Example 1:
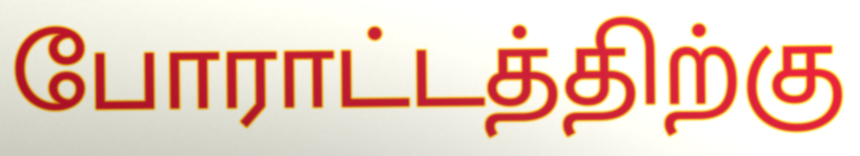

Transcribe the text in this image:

போராட்டத்திற்கு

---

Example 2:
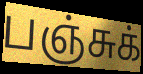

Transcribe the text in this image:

பஞ்சுக்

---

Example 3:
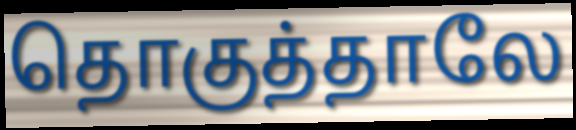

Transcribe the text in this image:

தொகுத்தாலே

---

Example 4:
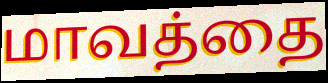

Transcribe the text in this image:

மாவத்தை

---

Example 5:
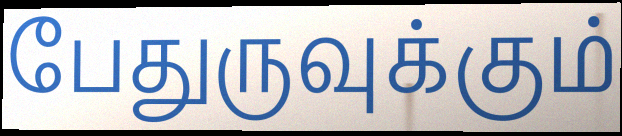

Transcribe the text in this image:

பேதுருவுக்கும்